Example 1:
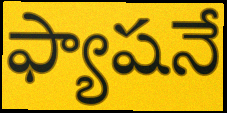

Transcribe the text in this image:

ఫ్యాషనే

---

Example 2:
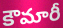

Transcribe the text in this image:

కౌమారీ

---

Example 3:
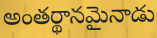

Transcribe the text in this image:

అంతర్థానమైనాడు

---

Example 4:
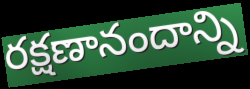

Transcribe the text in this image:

రక్షణానందాన్ని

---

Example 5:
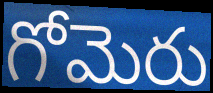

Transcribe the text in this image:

గోమెరు